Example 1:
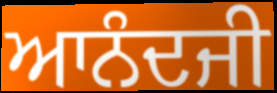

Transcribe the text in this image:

ਆਨੰਦਜੀ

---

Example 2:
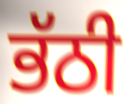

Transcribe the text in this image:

ਭੱਠੀ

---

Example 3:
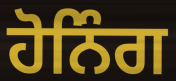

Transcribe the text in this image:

ਹੋਨਿੰਗ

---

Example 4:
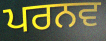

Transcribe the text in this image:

ਪਰਨਵ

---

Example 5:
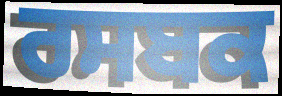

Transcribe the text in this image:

ਰਸਬਕ